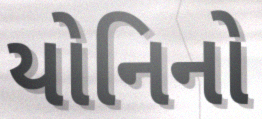
યોનિનો